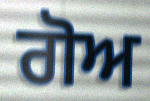
ਗੋਅ